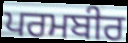
ਪਰਮਬੀਰ